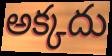
అక్కదు